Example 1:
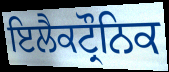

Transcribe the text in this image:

ਇਲੈਕਟ੍ਰੌਨਿਕ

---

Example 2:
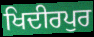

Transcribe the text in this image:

ਖਿਦੀਰਪੁਰ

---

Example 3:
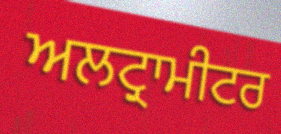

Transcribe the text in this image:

ਅਲਟ੍ਰਾਮੀਟਰ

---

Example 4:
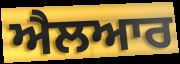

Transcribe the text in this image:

ਐਲਆਰ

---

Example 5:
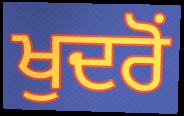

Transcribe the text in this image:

ਖੁਦਰੋਂ